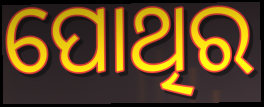
ପୋଥିର